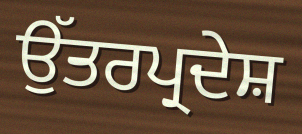
ਉੱਤਰਪ੍ਰਦੇਸ਼